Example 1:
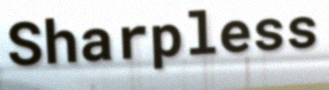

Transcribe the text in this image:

Sharpless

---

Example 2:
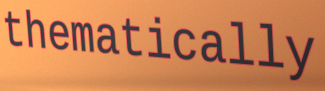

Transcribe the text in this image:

thematically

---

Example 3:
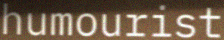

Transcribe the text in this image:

humourist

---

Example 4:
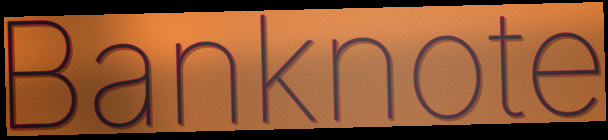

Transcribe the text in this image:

Banknote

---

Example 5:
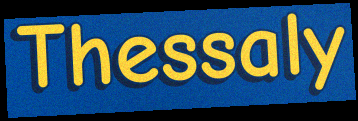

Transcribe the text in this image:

Thessaly